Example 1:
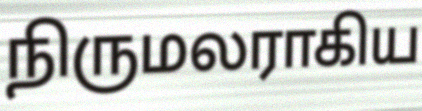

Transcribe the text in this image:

நிருமலராகிய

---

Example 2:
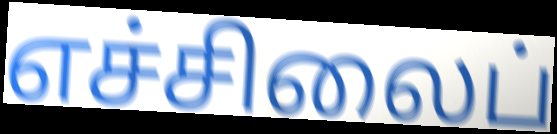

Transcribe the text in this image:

எச்சிலைப்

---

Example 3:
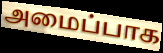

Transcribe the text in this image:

அமைப்பாக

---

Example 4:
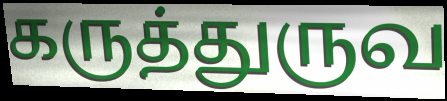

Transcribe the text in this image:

கருத்துருவ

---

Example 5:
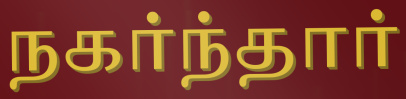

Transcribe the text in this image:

நகர்ந்தார்